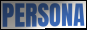
PERSONA